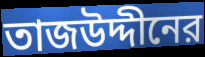
তাজউদ্দীনের